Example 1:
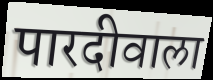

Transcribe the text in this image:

पारदीवाला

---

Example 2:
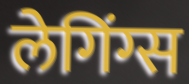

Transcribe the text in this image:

लेगिंग्स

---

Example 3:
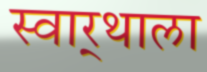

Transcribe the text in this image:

स्वार्थाला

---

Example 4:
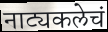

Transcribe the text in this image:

नाट्यकलेचं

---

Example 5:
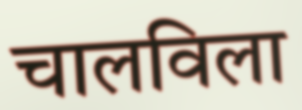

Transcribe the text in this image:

चालविला